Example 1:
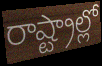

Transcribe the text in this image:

రాష్ట్రాల్లో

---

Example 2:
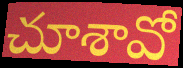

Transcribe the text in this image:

చూశావో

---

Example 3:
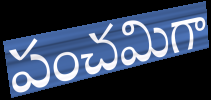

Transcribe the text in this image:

పంచమిగా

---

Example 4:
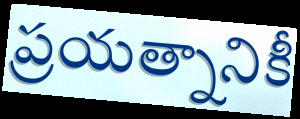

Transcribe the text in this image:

ప్రయత్నానికీ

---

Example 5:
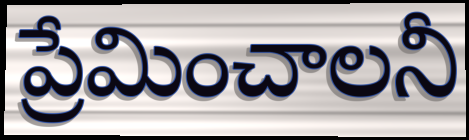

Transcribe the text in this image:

ప్రేమించాలనీ